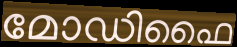
മോഡിഫൈ